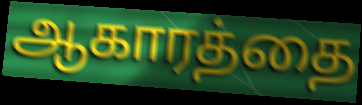
ஆகாரத்தை